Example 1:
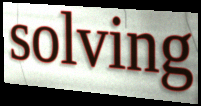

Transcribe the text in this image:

solving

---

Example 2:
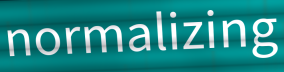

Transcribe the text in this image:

normalizing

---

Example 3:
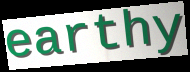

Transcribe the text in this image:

earthy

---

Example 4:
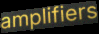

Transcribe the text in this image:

amplifiers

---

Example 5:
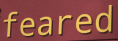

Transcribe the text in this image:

feared